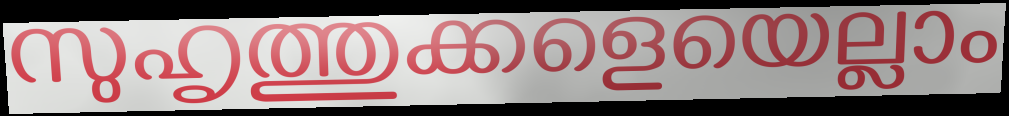
സുഹൃത്തുക്കളെയെല്ലാം